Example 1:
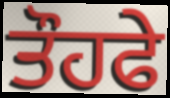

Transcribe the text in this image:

ਤੌਹਫੇ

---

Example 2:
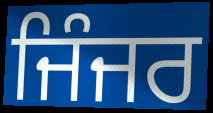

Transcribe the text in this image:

ਜਿੰਜਰ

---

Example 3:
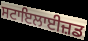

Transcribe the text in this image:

ਸਟਾਇਲਾਈਜ਼ਡ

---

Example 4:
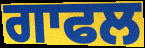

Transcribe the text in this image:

ਗਾਫਲ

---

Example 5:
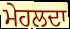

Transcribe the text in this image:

ਮੇਹਲਦਾ